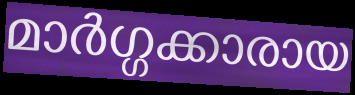
മാർഗ്ഗക്കാരായ